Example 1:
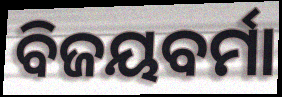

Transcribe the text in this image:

ବିଜୟବର୍ମା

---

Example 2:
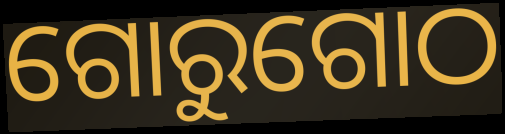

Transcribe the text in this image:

ଗୋରୁଗୋଠ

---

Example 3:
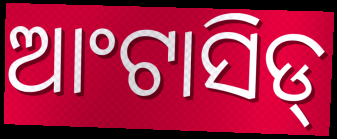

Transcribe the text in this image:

ଆଂଟାସିଡ୍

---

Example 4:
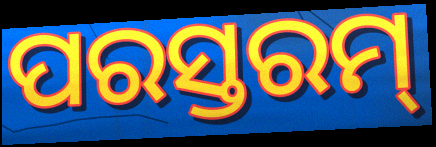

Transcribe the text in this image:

ପରସ୍ତରମ୍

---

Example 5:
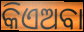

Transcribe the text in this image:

କିଏଅବା